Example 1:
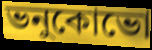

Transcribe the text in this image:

ভনুকোভো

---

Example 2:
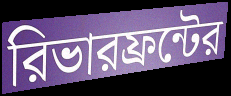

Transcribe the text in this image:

রিভারফ্রন্টের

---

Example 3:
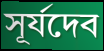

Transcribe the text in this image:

সূর্যদেব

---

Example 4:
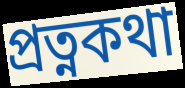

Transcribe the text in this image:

প্রত্নকথা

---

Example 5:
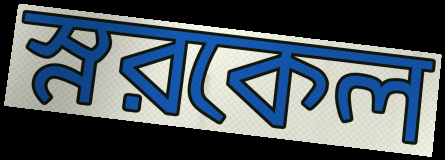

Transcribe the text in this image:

স্নরকেল